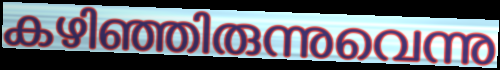
കഴിഞ്ഞിരുന്നുവെന്നു